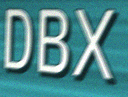
DBX